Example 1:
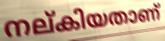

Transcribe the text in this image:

നല്കിയതാണ്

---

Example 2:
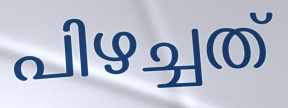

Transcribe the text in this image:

പിഴച്ചത്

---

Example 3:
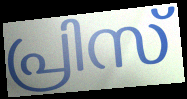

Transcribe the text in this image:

പ്രിസ്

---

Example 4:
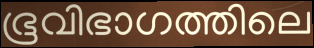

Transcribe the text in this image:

ഭൂവിഭാഗത്തിലെ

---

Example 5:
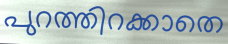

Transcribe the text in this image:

പുറത്തിറക്കാതെ